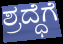
ಶ್ರದ್ಧೆಗೆ